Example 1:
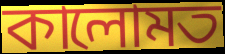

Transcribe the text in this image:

কালোমত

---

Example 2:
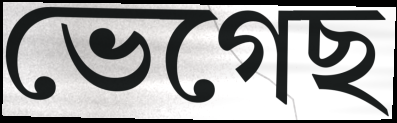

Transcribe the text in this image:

ভেগেছ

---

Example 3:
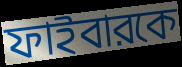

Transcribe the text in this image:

ফাইবারকে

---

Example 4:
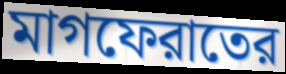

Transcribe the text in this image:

মাগফেরাতের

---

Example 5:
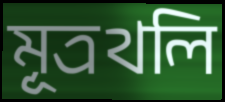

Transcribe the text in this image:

মূত্রথলি